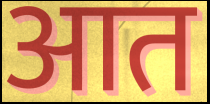
आत